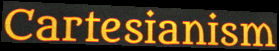
Cartesianism